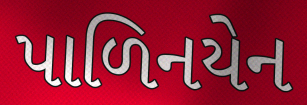
પાળિનયેન